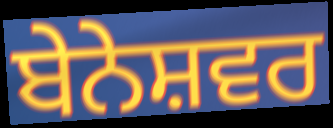
ਬੇਨੇਸ਼ਵਰ